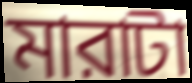
মারাটা